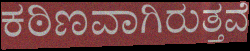
ಕಠಿಣವಾಗಿರುತ್ತವೆ